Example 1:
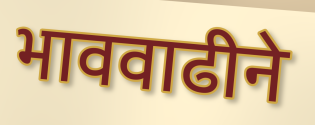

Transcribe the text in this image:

भाववाढीने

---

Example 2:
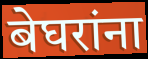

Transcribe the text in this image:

बेघरांना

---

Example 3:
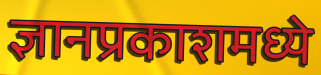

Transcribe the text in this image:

ज्ञानप्रकाशमध्ये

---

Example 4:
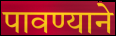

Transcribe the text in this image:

पावण्याने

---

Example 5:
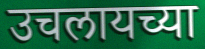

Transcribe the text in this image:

उचलायच्या